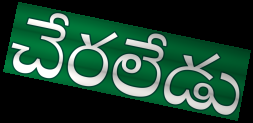
చేరలేడు